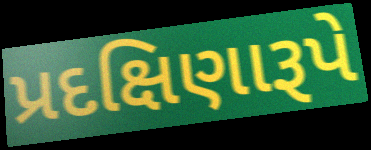
પ્રદક્ષિણારૂપે